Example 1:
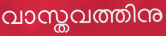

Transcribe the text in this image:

വാസ്തവത്തിനു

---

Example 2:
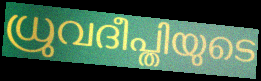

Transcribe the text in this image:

ധ്രുവദീപ്തിയുടെ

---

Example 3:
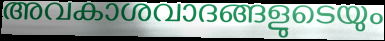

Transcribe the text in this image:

അവകാശവാദങ്ങളുടെയും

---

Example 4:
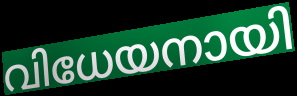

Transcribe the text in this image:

വിധേയനായി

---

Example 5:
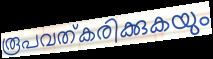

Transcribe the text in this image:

രൂപവത്കരിക്കുകയും